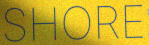
SHORE